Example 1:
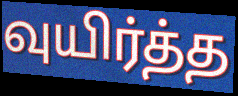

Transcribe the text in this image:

வுயிர்த்த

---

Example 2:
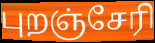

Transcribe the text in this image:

புறஞ்சேரி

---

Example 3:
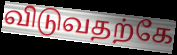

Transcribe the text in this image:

விடுவதற்கே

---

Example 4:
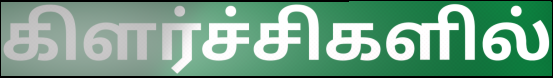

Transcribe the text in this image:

கிளர்ச்சிகளில்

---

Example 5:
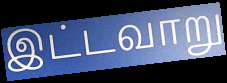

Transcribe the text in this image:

இட்டவாறு